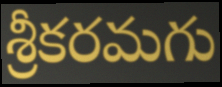
శ్రీకరమగు